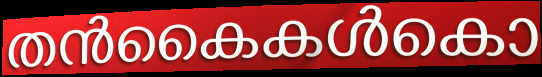
തൻകൈകൾകൊ